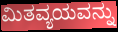
ಮಿತವ್ಯಯವನ್ನು